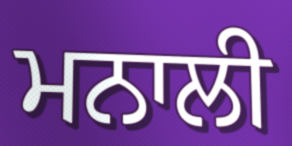
ਮਨਾਲੀ